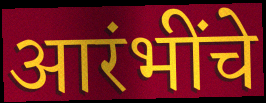
आरंभींचे